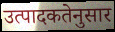
उत्पादकतेनुसार